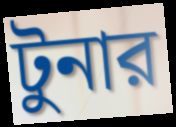
টুনার